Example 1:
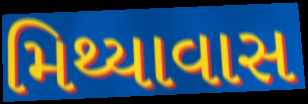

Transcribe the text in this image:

મિથ્યાવાસ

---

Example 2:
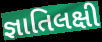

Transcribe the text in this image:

જ્ઞાતિલક્ષી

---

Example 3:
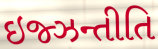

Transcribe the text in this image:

ઇજ્ઝન્તીતિ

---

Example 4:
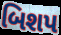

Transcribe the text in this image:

બિશપ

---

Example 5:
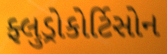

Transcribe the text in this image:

ફ્લુડ્રોકોર્ટિસોન